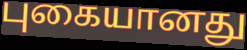
புகையானது